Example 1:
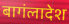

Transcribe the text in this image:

बागंलादेश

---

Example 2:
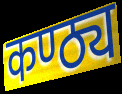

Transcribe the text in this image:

कण्ठ्य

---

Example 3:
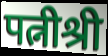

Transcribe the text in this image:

पत्नीश्री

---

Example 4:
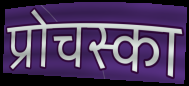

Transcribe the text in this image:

प्रोचस्का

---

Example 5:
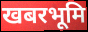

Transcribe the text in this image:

खबरभूमि